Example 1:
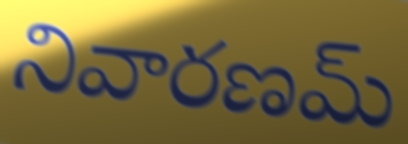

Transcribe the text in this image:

నివారణమ్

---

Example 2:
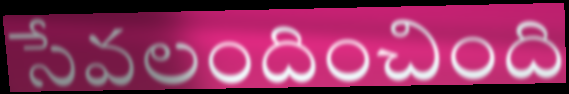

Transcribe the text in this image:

సేవలందించింది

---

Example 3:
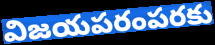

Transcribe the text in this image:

విజయపరంపరకు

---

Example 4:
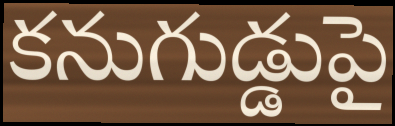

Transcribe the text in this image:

కనుగుడ్డుపై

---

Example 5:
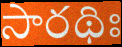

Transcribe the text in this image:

సారథిః